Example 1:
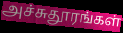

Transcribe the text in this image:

அச்சுதூரங்கள்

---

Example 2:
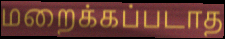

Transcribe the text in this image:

மறைக்கப்படாத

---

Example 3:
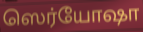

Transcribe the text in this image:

ஸெர்யோஷா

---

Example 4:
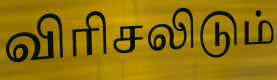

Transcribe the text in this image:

விரிசலிடும்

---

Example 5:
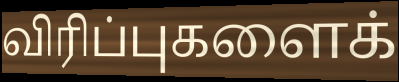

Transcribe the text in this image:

விரிப்புகளைக்